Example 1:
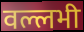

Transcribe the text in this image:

वल्लभी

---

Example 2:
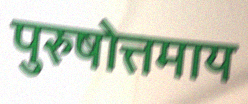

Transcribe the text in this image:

पुरुषोत्तमाय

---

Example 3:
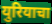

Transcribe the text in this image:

युरियाचा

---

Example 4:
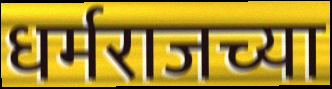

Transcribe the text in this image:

धर्मराजच्या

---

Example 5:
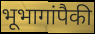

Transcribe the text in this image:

भूभागांपैकी